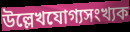
উল্লেখযোগ্যসংখ্যক